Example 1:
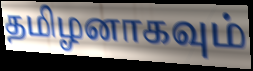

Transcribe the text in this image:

தமிழனாகவும்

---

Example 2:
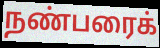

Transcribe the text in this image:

நண்பரைக்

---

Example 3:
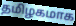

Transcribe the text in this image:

தமிழகமாக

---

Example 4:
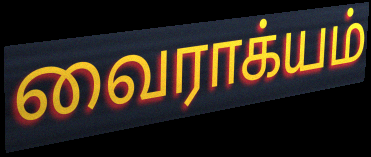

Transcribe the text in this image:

வைராக்யம்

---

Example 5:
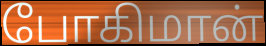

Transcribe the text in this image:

போகிமான்